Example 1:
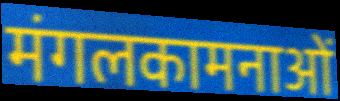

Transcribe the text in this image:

मंगलकामनाओं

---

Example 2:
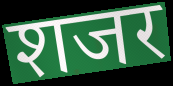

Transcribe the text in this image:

शजर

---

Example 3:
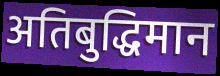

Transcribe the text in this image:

अतिबुद्धिमान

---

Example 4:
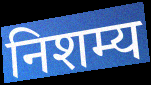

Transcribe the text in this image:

निशम्य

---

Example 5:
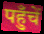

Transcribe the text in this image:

पहुँचें